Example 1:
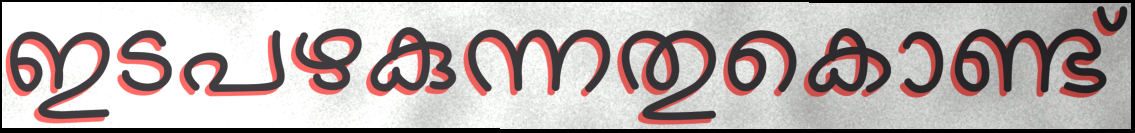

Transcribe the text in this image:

ഇടപഴകുന്നതുകൊണ്ട്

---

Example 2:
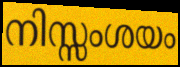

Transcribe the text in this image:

നിസ്സംശയം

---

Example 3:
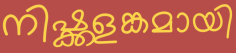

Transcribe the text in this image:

നിഷ്ക്കളങ്കമായി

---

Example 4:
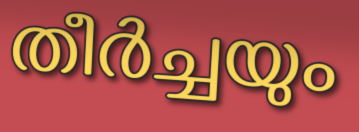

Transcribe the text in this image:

തീർച്ചയും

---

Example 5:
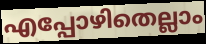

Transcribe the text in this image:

എപ്പോഴിതെല്ലാം